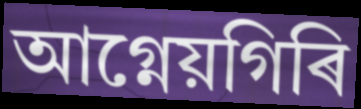
আগ্নেয়গিৰি